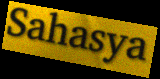
Sahasya